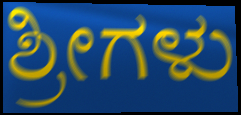
ಶ್ರೀಗಳು